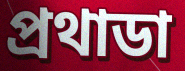
প্রথাডা